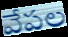
వేపల